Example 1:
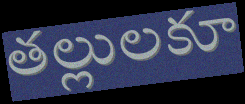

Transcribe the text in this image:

తల్లులకూ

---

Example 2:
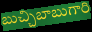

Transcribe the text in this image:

బుచ్చిబాబుగారి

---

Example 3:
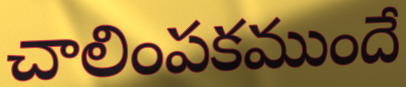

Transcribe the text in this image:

చాలింపకముందే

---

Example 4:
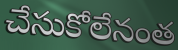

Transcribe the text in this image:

చేసుకోలేనంత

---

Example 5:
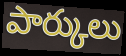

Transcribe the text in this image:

పార్కులు